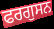
ਫਰਗੁਸਨ